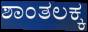
ಶಾಂತಲಕ್ಕ